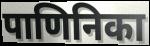
पाणिनिका